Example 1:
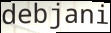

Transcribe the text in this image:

debjani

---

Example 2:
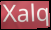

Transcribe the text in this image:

Xalq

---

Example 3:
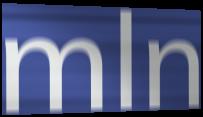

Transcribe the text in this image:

mln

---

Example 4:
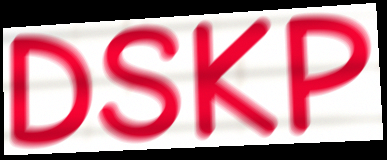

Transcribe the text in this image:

DSKP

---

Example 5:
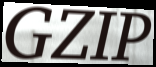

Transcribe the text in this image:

GZIP